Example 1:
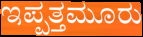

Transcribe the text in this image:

ಇಪ್ಪತ್ತಮೂರು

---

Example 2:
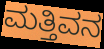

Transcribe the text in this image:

ಮತ್ತಿವನ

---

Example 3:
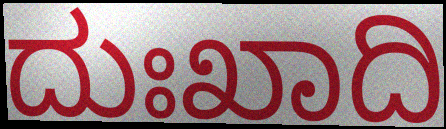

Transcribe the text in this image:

ದುಃಖಾದಿ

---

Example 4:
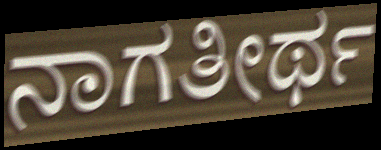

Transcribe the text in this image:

ನಾಗತೀರ್ಥ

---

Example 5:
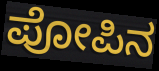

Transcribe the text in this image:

ಪೋಪಿನ